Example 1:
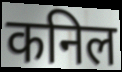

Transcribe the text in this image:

कनिल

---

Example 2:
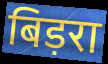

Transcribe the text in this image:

बिड़रा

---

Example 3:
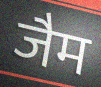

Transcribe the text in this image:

जैम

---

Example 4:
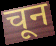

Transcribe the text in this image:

चून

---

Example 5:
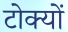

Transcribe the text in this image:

टोक्यों